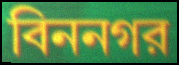
বিননগর